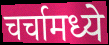
चर्चामध्ये